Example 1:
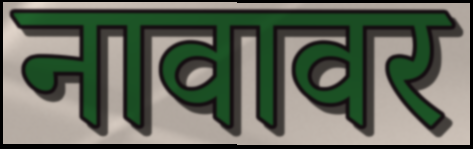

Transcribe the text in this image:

नावावर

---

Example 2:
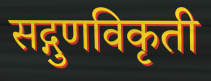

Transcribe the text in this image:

सद्गुणविकृती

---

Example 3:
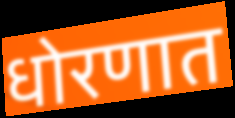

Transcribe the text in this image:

धोरणात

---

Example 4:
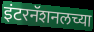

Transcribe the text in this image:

इंटरनॅशनलच्या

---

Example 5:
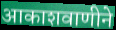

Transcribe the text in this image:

आकाशवाणीने